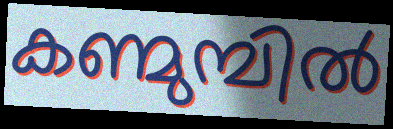
കണ്മുമ്പിൽ